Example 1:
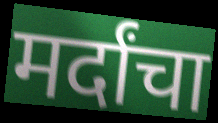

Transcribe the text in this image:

मर्दांचा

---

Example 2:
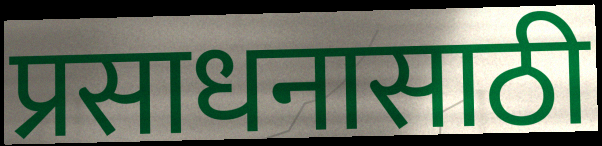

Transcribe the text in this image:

प्रसाधनासाठी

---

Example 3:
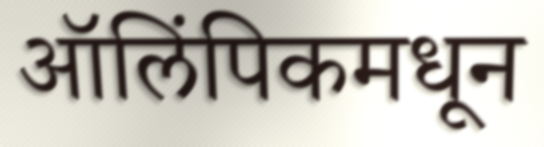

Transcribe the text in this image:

ऑलिंपिकमधून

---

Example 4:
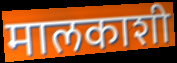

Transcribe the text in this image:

मालकाशी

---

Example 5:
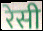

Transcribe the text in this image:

रेसी